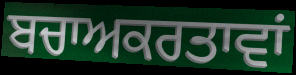
ਬਚਾਅਕਰਤਾਵਾਂ